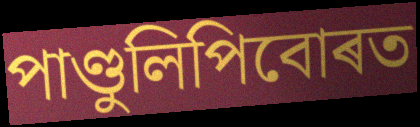
পাণ্ডুলিপিবোৰত